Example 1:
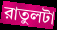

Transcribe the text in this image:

রাতুলটা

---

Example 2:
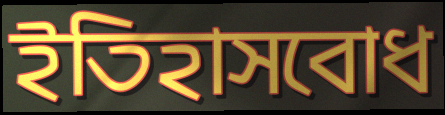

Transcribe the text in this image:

ইতিহাসবোধ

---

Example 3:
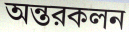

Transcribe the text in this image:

অন্তরকলন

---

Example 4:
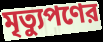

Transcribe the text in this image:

মৃত্যুপণের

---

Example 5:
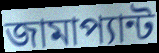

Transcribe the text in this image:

জামাপ্যান্ট